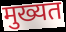
मुख्‍यत